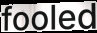
fooled